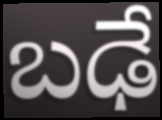
బఢే